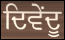
ਦਿਵੇਂਦੂ